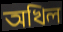
অখিল